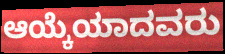
ಆಯ್ಕೆಯಾದವರು